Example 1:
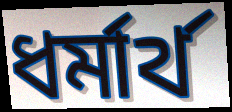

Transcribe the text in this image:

ধর্মার্থ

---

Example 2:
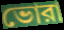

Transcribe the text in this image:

ভোরা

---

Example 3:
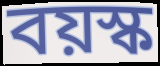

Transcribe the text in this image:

বয়স্ক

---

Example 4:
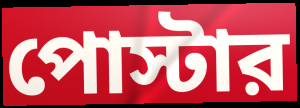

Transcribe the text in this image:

পোস্টার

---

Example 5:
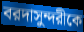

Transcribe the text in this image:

বরদাসুন্দরীকে